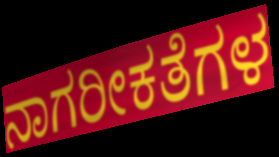
ನಾಗರೀಕತೆಗಳ